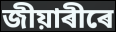
জীয়াৰীৰে